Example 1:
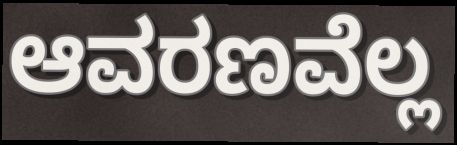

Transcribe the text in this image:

ಆವರಣವೆಲ್ಲ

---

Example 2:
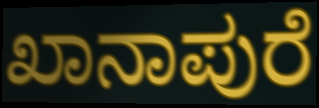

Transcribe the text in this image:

ಖಾನಾಪುರೆ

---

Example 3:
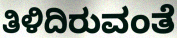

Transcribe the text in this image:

ತಿಳಿದಿರುವಂತೆ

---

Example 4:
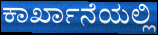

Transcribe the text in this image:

ಕಾರ್ಖಾನೆಯಲ್ಲಿ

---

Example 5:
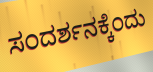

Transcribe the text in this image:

ಸಂದರ್ಶನಕ್ಕೆಂದು